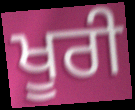
ਖੂਰੀ